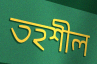
তহশীল